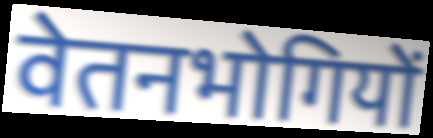
वेतनभोगियों